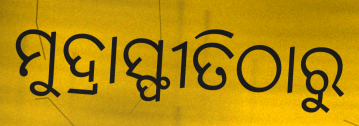
ମୁଦ୍ରାସ୍ଫୀତିଠାରୁ